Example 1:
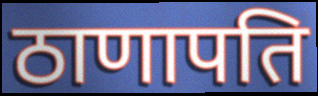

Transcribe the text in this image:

ठाणापति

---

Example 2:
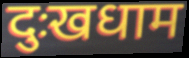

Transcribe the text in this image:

दुःखधाम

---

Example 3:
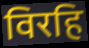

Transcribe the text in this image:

विरहि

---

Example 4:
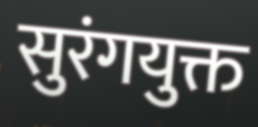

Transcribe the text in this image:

सुरंगयुक्त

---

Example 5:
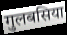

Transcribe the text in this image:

गुलबसिया